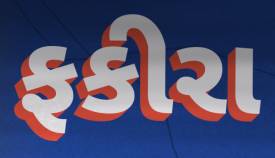
ફકીરા